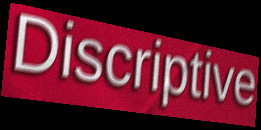
Discriptive